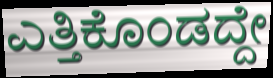
ಎತ್ತಿಕೊಂಡದ್ದೇ